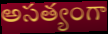
అసత్యంగా